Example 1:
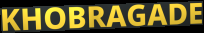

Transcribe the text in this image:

KHOBRAGADE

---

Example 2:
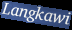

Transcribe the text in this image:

Langkawi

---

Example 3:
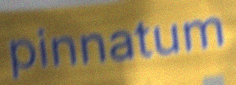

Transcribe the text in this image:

pinnatum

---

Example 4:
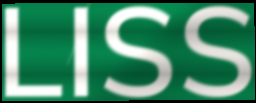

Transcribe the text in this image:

LISS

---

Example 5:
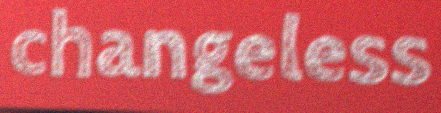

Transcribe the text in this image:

changeless